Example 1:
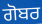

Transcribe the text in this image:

ਗੋਬਰ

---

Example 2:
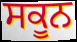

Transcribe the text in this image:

ਸਕੂਨ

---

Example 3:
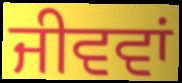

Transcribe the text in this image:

ਜੀਵਵਾਂ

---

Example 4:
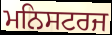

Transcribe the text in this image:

ਮਨਿਸਟਰਜ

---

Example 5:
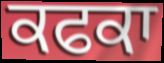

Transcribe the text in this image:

ਕਫਕਾ